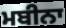
ਮਬੀਨਾ